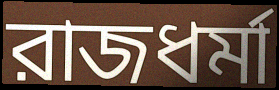
রাজধর্মা